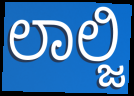
ಲಾಲ್ಜಿ